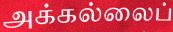
அக்கல்லைப்